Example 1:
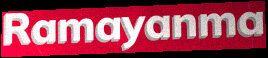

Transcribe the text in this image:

Ramayanma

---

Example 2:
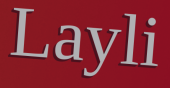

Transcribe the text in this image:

Layli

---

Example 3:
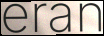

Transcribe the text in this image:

eran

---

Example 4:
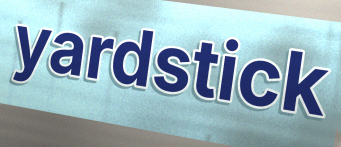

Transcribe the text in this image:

yardstick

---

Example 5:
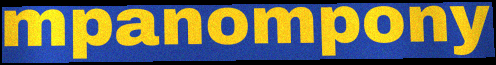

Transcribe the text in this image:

mpanompony